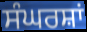
ਸੰਘਰਸ਼ਾਂ